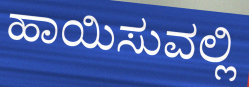
ಹಾಯಿಸುವಲ್ಲಿ